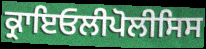
ਕ੍ਰਾਇਓਲੀਪੋਲੀਸਿਸ